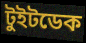
টুইটডেক